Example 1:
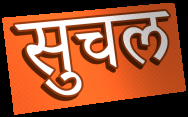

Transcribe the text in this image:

सुचल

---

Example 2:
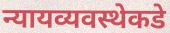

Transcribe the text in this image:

न्यायव्यवस्थेकडे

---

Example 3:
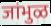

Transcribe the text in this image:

जांभुळ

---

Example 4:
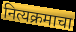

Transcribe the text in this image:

नित्यक्रमाचा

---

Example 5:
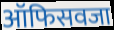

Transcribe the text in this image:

ऑफिसवजा